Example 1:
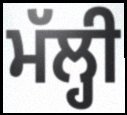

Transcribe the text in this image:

ਮੱਲ੍ਹੀ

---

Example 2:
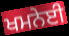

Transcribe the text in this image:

ਖਮਨੇਈ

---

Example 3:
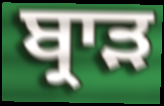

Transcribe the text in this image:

ਬ੍ਰਾੜ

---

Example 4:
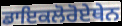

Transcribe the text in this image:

ਡਾਇਕਲੋਰੋਏਥੇਨ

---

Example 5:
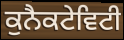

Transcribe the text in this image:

ਕੁਨੈਕਟੇਵਿਟੀ